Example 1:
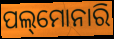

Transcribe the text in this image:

ପଲ୍‌ମୋନାରି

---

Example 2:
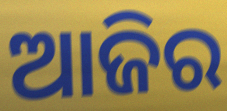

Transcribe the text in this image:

ଆଜିର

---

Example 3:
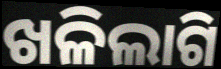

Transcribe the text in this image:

ଖଳିଲାଗି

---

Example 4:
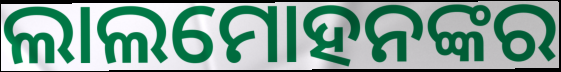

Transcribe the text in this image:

ଲାଲମୋହନଙ୍କର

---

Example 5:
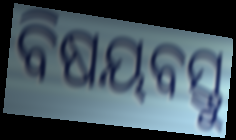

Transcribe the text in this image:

ବିଷୟବସ୍ତୁ